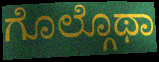
ಗೊಲ್ಗೊಥಾ